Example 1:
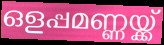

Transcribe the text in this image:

ഒളപ്പമണ്ണയ്ക്ക്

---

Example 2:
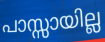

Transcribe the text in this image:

പാസ്സായില്ല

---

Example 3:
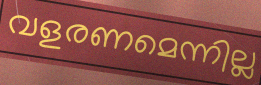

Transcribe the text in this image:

വളരണമെന്നില്ല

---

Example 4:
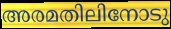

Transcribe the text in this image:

അരമതിലിനോടു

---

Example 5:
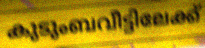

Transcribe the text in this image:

കുടുംബവീട്ടിലേക്ക്